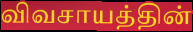
விவசாயத்தின்